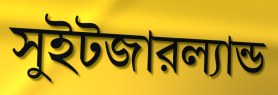
সুইটজারল্যান্ড